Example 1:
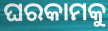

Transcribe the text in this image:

ଘରକାମକୁ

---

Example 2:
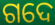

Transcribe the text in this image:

ଗଦେ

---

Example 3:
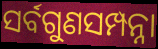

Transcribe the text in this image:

ସର୍ବଗୁଣସମ୍ପନ୍ନା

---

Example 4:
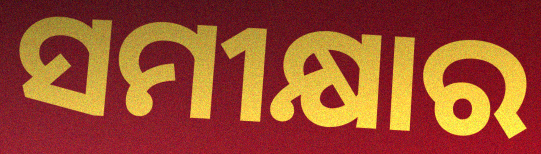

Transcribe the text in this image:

ସମୀକ୍ଷାର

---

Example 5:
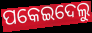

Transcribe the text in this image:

ପକେଇଦେଲୁ